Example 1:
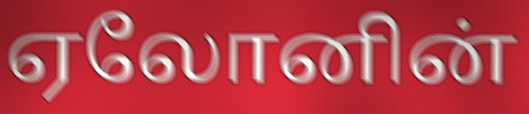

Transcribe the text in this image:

ஏலோனின்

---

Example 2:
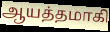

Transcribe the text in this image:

ஆயத்தமாகி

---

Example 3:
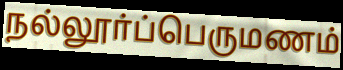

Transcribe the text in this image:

நல்லூர்ப்பெருமணம்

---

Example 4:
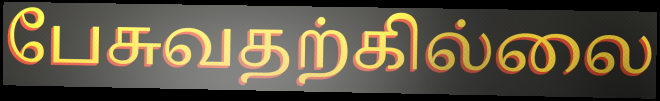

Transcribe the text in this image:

பேசுவதற்கில்லை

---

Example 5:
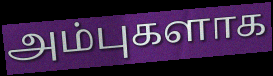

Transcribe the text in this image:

அம்புகளாக